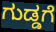
ಗುಡ್ಡಗೆ